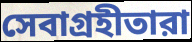
সেবাগ্রহীতারা